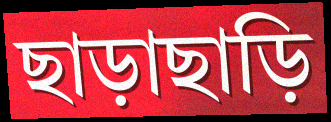
ছাড়াছাড়ি